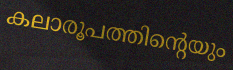
കലാരൂപത്തിന്റെയും